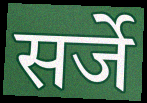
सर्जे